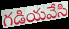
గడియవేసి